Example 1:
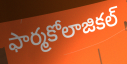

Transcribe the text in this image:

ఫార్మకోలాజికల్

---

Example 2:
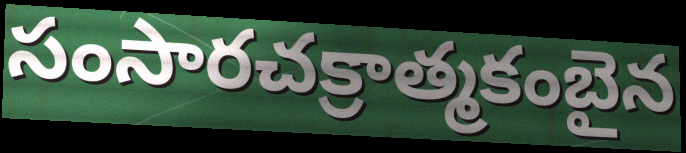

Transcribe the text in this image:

సంసారచక్రాత్మకంబైన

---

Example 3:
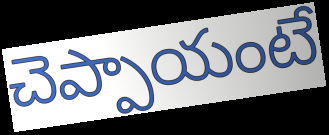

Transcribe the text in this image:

చెప్పాయంటే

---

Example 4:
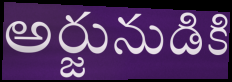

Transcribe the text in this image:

అర్జునుడికి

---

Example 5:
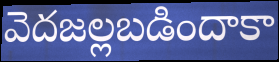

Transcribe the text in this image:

వెదజల్లబడిందాకా